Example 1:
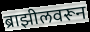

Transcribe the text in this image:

ब्राझीलवरून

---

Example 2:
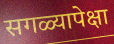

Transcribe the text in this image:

सगळ्यापेक्षा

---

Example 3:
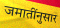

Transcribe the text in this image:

जमातींनुसार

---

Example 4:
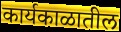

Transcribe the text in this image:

कार्यकाळातील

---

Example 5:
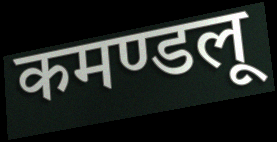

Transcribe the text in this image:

कमण्डलू